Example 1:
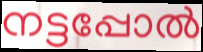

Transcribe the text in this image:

നട്ടപ്പോൽ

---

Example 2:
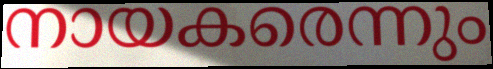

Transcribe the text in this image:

നായകരെന്നും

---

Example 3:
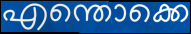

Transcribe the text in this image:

എന്തൊക്കെ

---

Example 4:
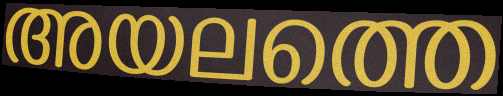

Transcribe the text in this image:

അയലത്തെ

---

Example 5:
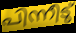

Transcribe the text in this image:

പിന്നീടു്